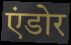
एंडोर